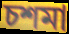
চশমা